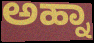
ಅಹ್ನಾ